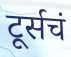
टूर्सचं